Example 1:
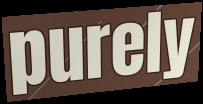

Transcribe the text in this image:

purely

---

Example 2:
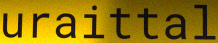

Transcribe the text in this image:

uraittal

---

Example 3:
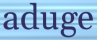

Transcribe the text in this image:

aduge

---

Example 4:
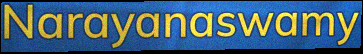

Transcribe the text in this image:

Narayanaswamy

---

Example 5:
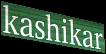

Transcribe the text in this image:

kashikar